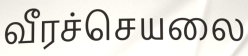
வீரச்செயலை